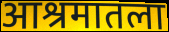
आश्रमातला